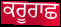
ਕਰੂਰਾਛ